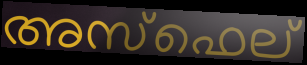
അസ്ഫെല്